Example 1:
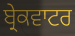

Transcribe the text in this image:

ਬ੍ਰੇਕਵਾਟਰ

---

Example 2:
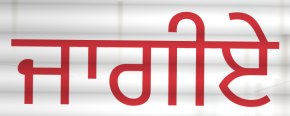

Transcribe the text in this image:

ਜਾਗੀਏ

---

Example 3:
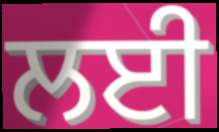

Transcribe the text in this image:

ਲਈ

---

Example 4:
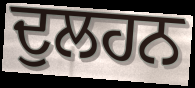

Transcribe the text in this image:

ਦੁਲਹਨ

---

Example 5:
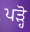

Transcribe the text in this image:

ਪੜ੍ਹੋ